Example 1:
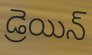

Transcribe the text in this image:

డ్రెయిన్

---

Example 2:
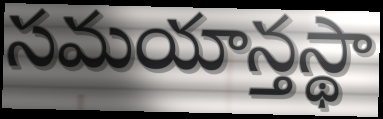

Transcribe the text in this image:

సమయాన్తస్థా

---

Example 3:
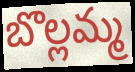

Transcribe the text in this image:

బొల్లమ్మ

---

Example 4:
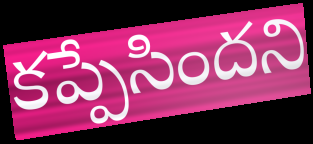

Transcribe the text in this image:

కప్పేసిందని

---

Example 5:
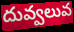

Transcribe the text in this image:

దువ్వలువ